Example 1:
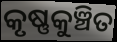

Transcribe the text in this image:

କୃଷ୍ଣକୁଞ୍ଚିତ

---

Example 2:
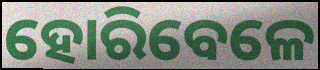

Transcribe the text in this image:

ହୋରିବେଳେ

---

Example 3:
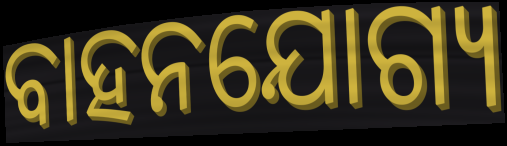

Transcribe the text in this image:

ବାହନଯୋଗ୍ୟ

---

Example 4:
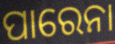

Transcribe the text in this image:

ପାରେନା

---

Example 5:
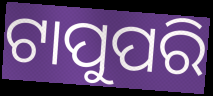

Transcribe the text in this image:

ଟାପୁପରି